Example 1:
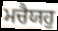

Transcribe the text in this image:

ਮਚੈਯਹੁ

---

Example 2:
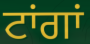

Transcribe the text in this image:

ਟਾਂਗਾਂ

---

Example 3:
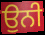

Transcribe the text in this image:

ਉਨੀ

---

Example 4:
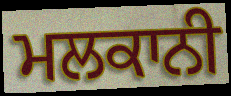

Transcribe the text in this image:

ਮਲਕਾਨੀ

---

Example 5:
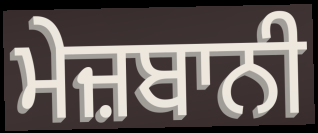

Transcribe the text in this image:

ਮੇਜ਼ਬਾਨੀ